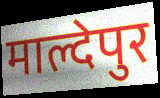
माल्देपुर